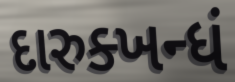
દારુક્ખન્ધં